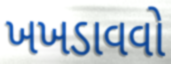
ખખડાવવો